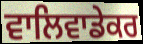
ਵਾਲਿਵਾਡੇਕਰ